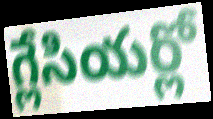
గ్లేసియర్లో